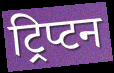
ट्रिप्टन